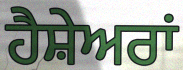
ਹੈਸ਼ੇਅਰਾਂ